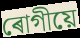
ৰোগীয়ে